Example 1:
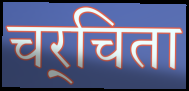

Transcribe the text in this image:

चर्चिता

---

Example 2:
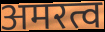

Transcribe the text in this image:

अमरत्व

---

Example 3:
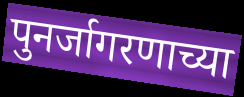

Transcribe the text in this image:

पुनर्जागरणाच्या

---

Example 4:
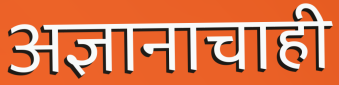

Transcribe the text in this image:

अज्ञानाचाही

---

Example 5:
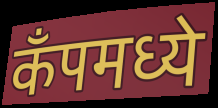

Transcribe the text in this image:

कॅंपमध्ये